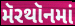
મૅરથૉનમાં